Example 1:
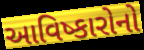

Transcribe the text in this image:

આવિષ્કારોનો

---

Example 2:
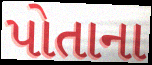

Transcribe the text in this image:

પોતાના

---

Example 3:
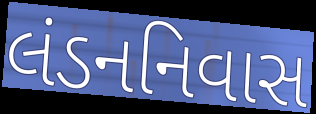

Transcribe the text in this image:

લંડનનિવાસ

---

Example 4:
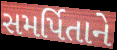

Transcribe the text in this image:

સમર્પિતાને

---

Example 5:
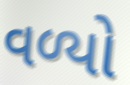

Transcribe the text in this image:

વળ્યો